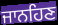
ਜਾਨਹਿਣ